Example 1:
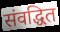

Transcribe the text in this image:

संवद्धित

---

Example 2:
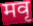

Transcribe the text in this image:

मवृ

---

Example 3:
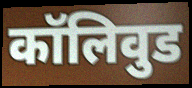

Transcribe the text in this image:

कॉलिवुड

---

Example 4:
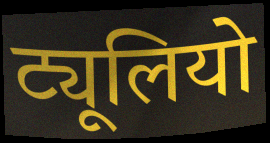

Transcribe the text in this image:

ट्यूलियो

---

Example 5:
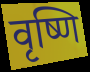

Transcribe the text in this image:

वृष्णि